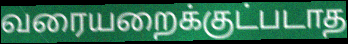
வரையறைக்குட்படாத